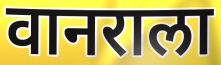
वानराला